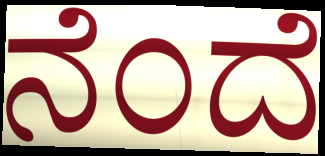
ನೆಂದೆ